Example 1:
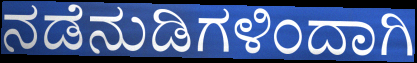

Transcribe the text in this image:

ನಡೆನುಡಿಗಳಿಂದಾಗಿ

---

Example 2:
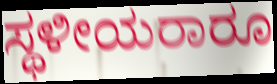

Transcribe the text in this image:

ಸ್ಥಳೀಯರಾರೂ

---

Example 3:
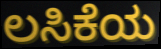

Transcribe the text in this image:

ಲಸಿಕೆಯ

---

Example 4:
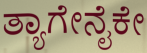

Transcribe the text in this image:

ತ್ಯಾಗೇನೈಕೇ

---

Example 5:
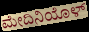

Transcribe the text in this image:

ಮೇದಿನಿಯೊಳ್